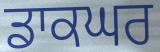
ਡਾਕਘਰ